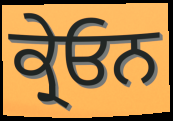
ਕ੍ਰੇਓਨ